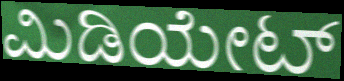
ಮಿಡಿಯೇಟ್